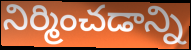
నిర్మించడాన్ని